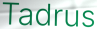
Tadrus